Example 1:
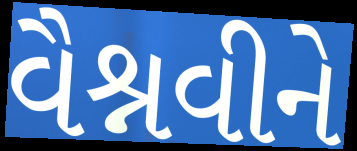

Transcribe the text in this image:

વૈશ્નવીને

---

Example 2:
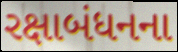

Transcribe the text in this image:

રક્ષાબંધનના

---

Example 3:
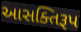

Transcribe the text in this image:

આસક્તિરૂપ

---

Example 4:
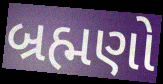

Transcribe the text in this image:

બ્રહ્મણો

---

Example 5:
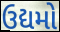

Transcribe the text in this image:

ઉદ્યમો